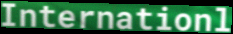
Internationl